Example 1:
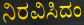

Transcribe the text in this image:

ನಿರವಿಸಿದಂ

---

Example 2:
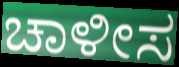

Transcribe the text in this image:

ಚಾಳೀಸ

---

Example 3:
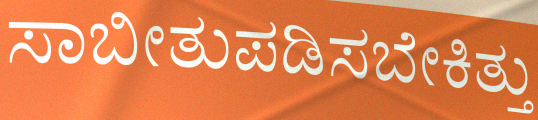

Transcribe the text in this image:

ಸಾಬೀತುಪಡಿಸಬೇಕಿತ್ತು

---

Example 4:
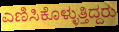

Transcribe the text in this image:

ಎಣಿಸಿಕೊಳ್ಳುತ್ತಿದ್ದರು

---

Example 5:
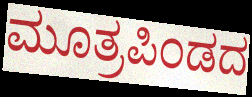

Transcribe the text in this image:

ಮೂತ್ರಪಿಂಡದ